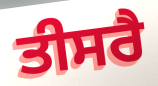
ਤੀਸਰੈ